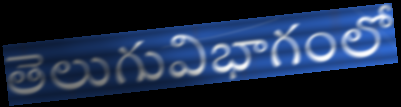
తెలుగువిభాగంలో